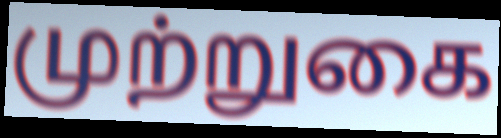
முற்றுகை